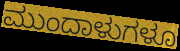
ಮುಂದಾಳುಗಳೂ